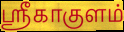
ஸ்ரீகாகுளம்